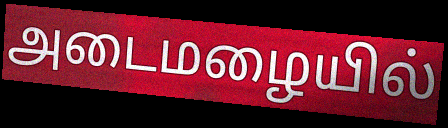
அடைமழையில்